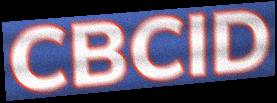
CBCID